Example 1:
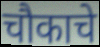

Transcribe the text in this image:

चौकाचे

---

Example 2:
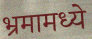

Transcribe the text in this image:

भ्रमामध्ये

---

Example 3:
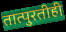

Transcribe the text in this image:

तात्पुरतीही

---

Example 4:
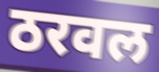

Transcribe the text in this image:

ठरवल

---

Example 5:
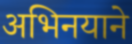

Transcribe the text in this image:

अभिनयाने